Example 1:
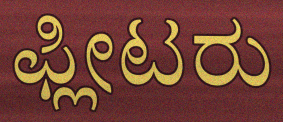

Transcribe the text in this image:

ಫ್ಲೀಟರು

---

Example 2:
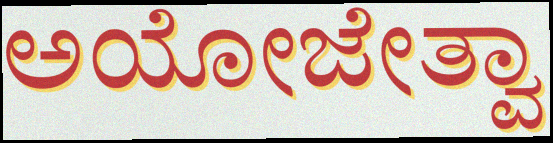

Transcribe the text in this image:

ಅಯೋಜೇತ್ವಾ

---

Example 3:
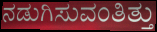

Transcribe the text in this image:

ನಡುಗಿಸುವಂತಿತ್ತು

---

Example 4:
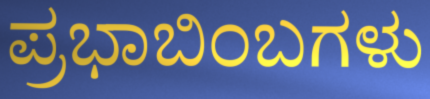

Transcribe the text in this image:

ಪ್ರಭಾಬಿಂಬಗಳು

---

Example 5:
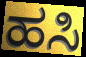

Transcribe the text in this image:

ಹಸಿ